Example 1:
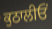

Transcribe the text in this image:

ਕੁਠਾਲੀਓਂ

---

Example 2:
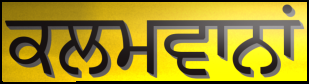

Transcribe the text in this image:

ਕਲਮਵਾਨਾਂ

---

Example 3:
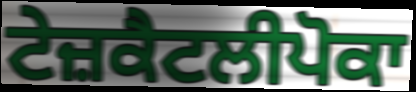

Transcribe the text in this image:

ਟੇਜ਼ਕੈਟਲੀਪੋਕਾ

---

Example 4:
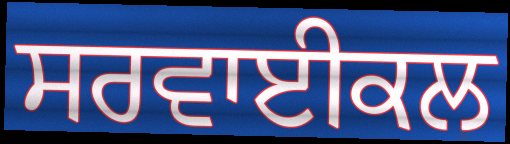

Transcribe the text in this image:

ਸਰਵਾਈਕਲ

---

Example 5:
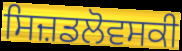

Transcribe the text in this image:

ਸਿਜ਼ਡਲੋਵਸਕੀ